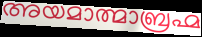
അയമാത്മാബ്രഹ്മ